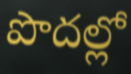
పొదల్లో